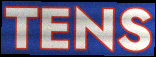
TENS